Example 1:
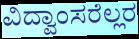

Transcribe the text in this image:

ವಿದ್ವಾಂಸರೆಲ್ಲರ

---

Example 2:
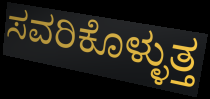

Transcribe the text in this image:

ಸವರಿಕೊಳ್ಳುತ್ತ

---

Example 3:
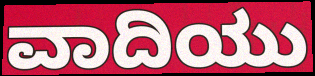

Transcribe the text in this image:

ವಾದಿಯು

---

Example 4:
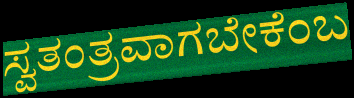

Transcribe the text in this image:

ಸ್ವತಂತ್ರವಾಗಬೇಕೆಂಬ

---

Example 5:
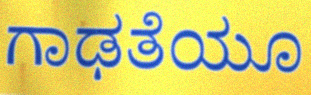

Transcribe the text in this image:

ಗಾಢತೆಯೂ